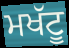
ਮਖੱਟੂ